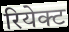
रियेक्ट